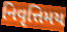
નિવૃત્તિમય